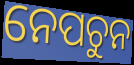
ନେପଚୁନ